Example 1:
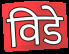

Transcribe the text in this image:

विडे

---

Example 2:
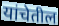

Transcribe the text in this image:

यांचेतील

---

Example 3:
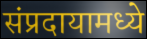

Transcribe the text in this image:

संप्रदायामध्ये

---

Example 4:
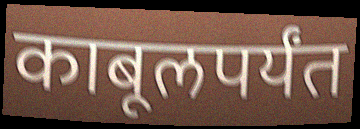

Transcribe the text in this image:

काबूलपर्यंत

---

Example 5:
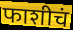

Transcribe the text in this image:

फाशीचं